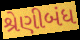
શ્રેણીબંધ